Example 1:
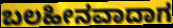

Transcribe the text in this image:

ಬಲಹೀನವಾದಾಗ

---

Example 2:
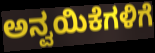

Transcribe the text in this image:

ಅನ್ವಯಿಕೆಗಳಿಗೆ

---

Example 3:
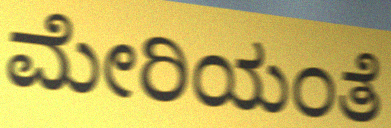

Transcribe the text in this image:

ಮೇರಿಯಂತೆ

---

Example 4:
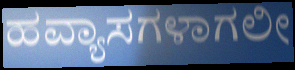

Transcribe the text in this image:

ಹವ್ಯಾಸಗಳಾಗಲೀ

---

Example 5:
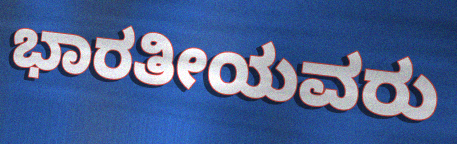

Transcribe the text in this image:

ಭಾರತೀಯವರು